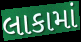
લાકામાં